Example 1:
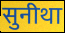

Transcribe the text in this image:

सुनीथा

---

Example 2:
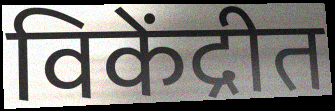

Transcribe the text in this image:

विकेंद्रीत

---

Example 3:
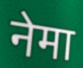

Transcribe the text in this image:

नेमा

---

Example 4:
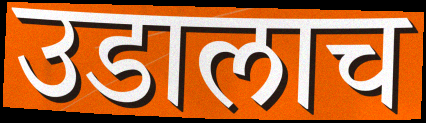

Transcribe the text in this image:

उडालाच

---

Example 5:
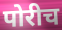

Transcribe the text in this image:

पोरीच